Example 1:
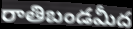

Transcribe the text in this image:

రాతిబండమీద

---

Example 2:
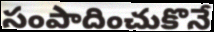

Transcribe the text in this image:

సంపాదించుకొనే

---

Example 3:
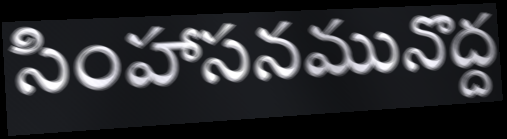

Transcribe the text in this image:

సింహాసనమునొద్ద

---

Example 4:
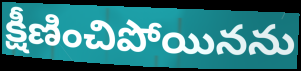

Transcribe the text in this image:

క్షీణించిపోయినను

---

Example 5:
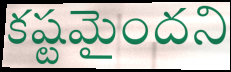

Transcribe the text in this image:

కష్టమైందని